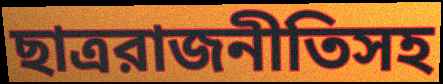
ছাত্ররাজনীতিসহ